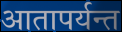
आतापर्यन्त